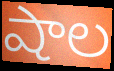
షాల